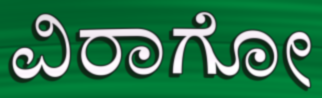
ವಿರಾಗೋ